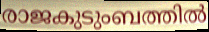
രാജകുടുംബത്തിൽ